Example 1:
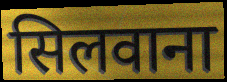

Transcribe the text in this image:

सिलवाना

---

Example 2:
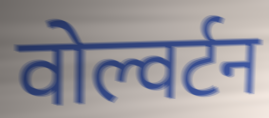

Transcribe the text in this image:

वोल्वर्टन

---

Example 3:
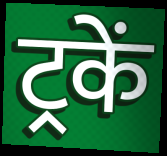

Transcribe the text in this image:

ट्रकें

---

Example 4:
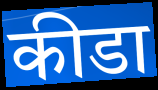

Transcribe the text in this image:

कीडा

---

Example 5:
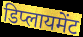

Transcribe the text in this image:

डिप्लायमेंट